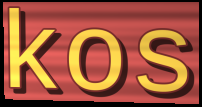
kos